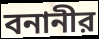
বনানীর